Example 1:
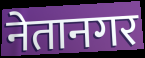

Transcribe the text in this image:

नेतानगर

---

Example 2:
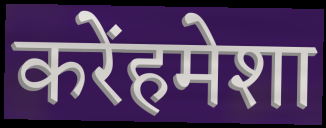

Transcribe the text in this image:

करेंहमेशा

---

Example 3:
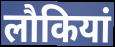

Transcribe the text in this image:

लौकियां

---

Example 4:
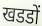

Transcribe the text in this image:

खडडों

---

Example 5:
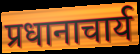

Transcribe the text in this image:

प्रधानाचार्य